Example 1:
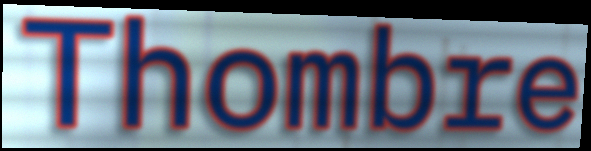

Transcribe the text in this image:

Thombre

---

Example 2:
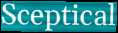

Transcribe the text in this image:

Sceptical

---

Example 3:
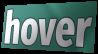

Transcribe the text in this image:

hover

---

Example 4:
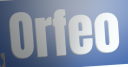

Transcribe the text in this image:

Orfeo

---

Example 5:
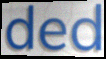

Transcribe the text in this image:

ded